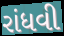
રાંધવી